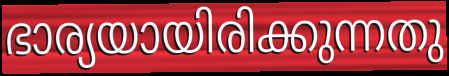
ഭാര്യയായിരിക്കുന്നതു